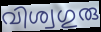
വിശ്വഗുരു